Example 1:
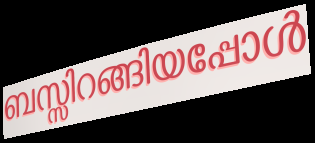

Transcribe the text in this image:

ബസ്സിറങ്ങിയപ്പോൾ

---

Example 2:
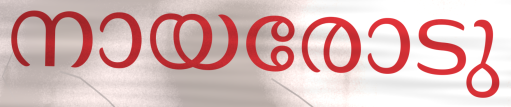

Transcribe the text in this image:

നായരോടു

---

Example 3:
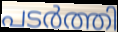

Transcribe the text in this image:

പടർത്തി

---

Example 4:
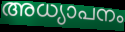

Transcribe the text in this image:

അധ്യാപനം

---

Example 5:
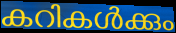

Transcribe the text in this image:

കറികൾക്കും